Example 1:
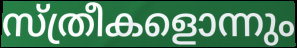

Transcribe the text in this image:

സ്ത്രീകളൊന്നും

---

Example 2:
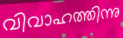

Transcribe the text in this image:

വിവാഹത്തിന്നു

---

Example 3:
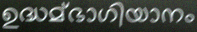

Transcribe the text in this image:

ഉദ്ധമ്ഭാഗിയാനം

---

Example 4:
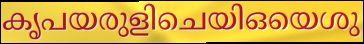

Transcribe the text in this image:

കൃപയരുളിചെയിഒയെശു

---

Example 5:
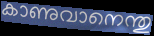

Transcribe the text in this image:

കാണുവാനെന്തു